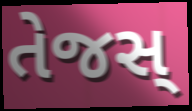
તેજસ્